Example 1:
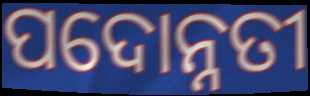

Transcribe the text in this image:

ପଦୋନ୍ନତୀ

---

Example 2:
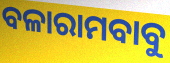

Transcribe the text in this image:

ବଳାରାମବାବୁ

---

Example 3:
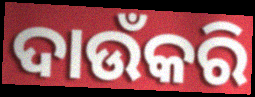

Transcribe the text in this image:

ଦାଉଁକରି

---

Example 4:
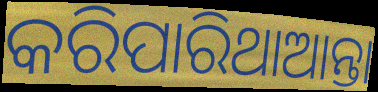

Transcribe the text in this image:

କରିପାରିଥାଆନ୍ତା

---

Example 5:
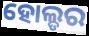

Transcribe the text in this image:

ହୋଲ୍ଡର